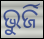
ଭୁର୍ଜି